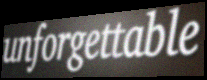
unforgettable